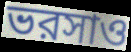
ভরসাও